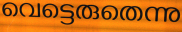
വെട്ടെരുതെന്നു